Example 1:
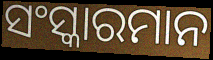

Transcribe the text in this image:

ସଂସ୍କାରମାନ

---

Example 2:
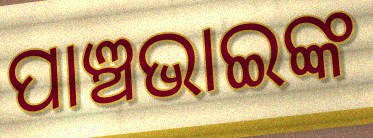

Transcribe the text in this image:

ପାଞ୍ଚଭାଇଙ୍କ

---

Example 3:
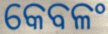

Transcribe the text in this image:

କେବଳଂ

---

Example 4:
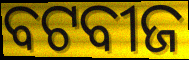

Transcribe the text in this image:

ବଟବୀଜ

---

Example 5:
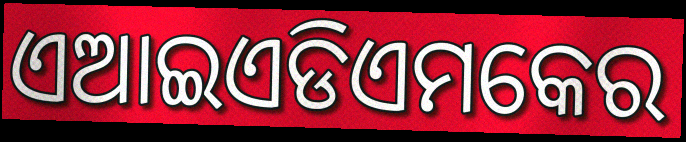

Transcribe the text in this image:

ଏଆଇଏଡିଏମକେର